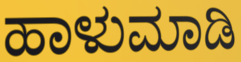
ಹಾಳುಮಾಡಿ